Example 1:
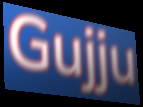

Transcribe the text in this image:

Gujju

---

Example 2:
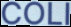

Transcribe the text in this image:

COLI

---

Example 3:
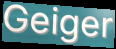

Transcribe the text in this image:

Geiger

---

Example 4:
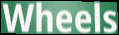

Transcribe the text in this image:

Wheels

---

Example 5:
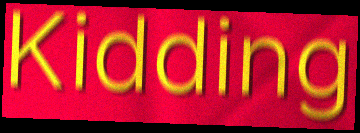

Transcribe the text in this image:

Kidding